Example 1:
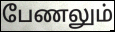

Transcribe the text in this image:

பேணலும்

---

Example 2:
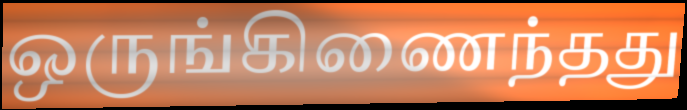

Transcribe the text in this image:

ஒருங்கிணைந்தது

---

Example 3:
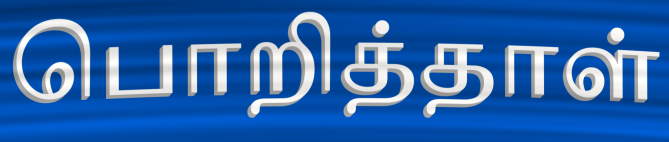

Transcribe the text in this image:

பொறித்தாள்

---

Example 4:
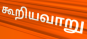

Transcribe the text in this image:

கூறியவாறு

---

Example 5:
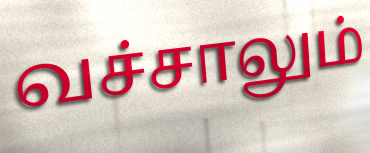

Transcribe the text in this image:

வச்சாலும்